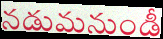
నడుమనుండీ